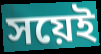
সয়েই